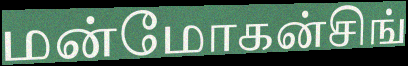
மன்மோகன்சிங்